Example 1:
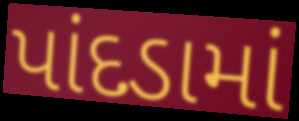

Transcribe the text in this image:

પાંદડામાં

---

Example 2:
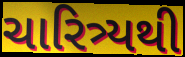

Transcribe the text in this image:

ચારિત્ર્યથી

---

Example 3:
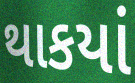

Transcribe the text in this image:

થાકયાં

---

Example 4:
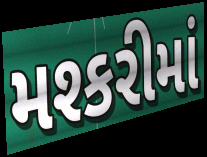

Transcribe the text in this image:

મશ્કરીમાં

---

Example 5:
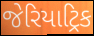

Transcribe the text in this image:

જેરિયાટ્રિક